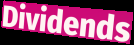
Dividends